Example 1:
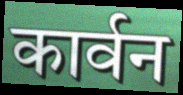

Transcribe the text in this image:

कार्वन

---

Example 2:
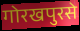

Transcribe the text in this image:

गोरखपुरसे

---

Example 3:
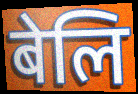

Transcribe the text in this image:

बेलि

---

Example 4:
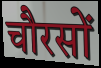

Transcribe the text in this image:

चौरसों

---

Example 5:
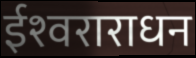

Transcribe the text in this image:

ईश्वराराधन